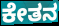
ಕೇತನ